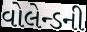
વોલેન્ડની